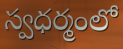
స్వధర్మంలో